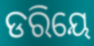
ଡରିୟେ